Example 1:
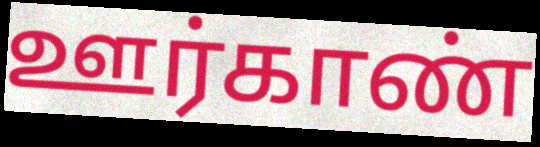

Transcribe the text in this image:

ஊர்காண்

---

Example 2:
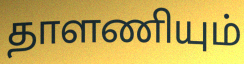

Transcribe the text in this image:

தாளணியும்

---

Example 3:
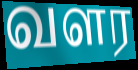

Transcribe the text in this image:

வளர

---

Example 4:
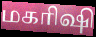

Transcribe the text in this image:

மகரிஷி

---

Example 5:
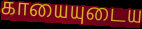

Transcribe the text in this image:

காயையுடைய